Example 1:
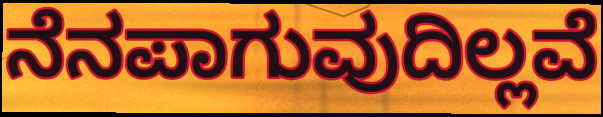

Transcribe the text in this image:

ನೆನಪಾಗುವುದಿಲ್ಲವೆ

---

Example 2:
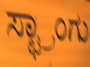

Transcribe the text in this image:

ಸ್ಟ್ರಾಂಗು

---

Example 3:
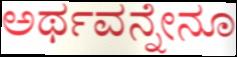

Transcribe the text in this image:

ಅರ್ಥವನ್ನೇನೂ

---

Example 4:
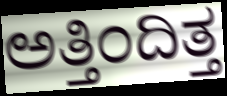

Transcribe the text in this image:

ಅತ್ತಿಂದಿತ್ತ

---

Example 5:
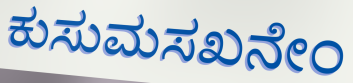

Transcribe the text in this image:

ಕುಸುಮಸಖನೇಂ